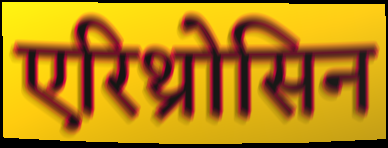
एरिथ्रोसिन